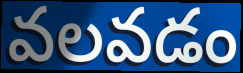
వలవడం